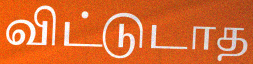
விட்டுடாத